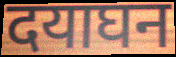
दयाघन